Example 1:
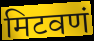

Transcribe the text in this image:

मिटवणं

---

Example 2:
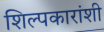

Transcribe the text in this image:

शिल्पकारांशी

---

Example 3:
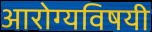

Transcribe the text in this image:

आरोग्यविषयी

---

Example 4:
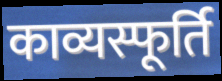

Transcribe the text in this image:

काव्यस्फूर्ति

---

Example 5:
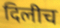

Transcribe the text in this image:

दिलीच